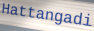
Hattangadi